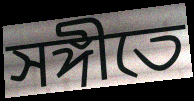
সঙ্গীতে